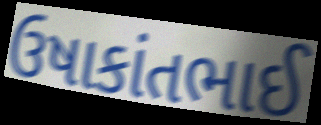
ઉષાકાંતભાઈ